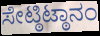
ಸೇಟ್ಠಿಟ್ಠಾನಂ